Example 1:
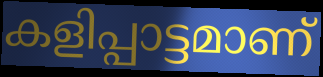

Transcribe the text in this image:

കളിപ്പാട്ടമാണ്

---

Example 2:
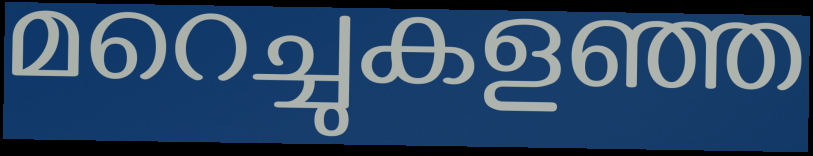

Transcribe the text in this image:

മറെച്ചുകളഞ്ഞ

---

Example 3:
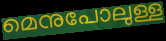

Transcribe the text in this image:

മെനുപോലുള്ള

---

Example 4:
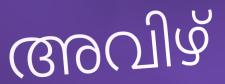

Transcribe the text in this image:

അവിഴ്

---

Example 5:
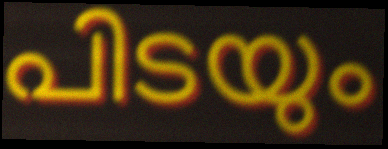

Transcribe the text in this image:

പിടയും